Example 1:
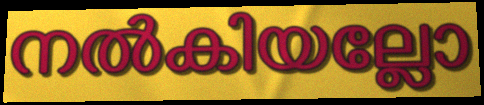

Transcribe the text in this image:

നൽകിയല്ലോ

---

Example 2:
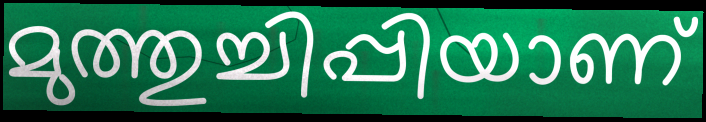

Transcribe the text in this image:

മുത്തുച്ചിപ്പിയാണ്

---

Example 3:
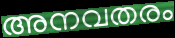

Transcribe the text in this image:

അനവതരം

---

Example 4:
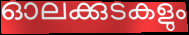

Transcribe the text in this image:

ഓലക്കുടകളും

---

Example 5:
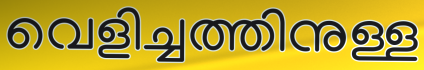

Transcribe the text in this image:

വെളിച്ചത്തിനുള്ള